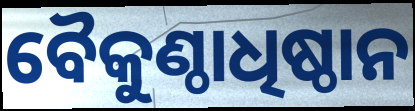
ବୈକୁଣ୍ଠାଧିଷ୍ଠାନ